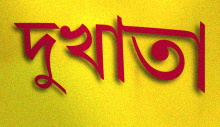
দুখাতা